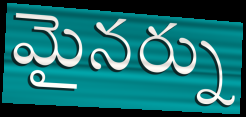
మైనర్ను